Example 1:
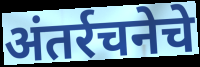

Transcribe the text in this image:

अंतर्रचनेचे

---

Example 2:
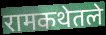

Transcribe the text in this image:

रामकथेतले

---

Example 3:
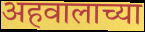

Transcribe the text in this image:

अहवालाच्या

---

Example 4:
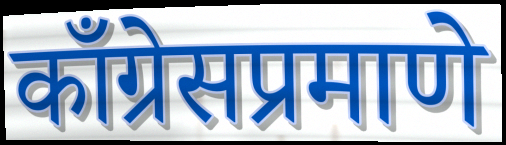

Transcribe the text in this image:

काँग्रेसप्रमाणे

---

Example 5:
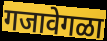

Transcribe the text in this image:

गजावेगळा